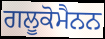
ਗਲੂਕੋਮੈਨਨ